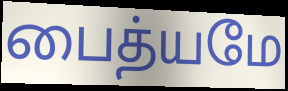
பைத்யமே